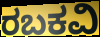
ರಬಕವಿ